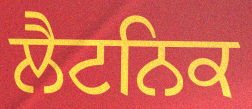
ਲੈਟਨਿਕ